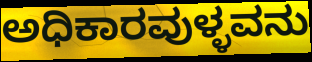
ಅಧಿಕಾರವುಳ್ಳವನು